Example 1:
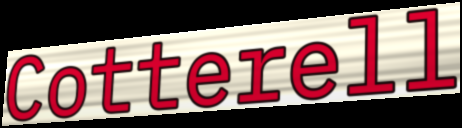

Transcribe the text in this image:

Cotterell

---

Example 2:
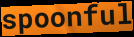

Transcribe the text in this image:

spoonful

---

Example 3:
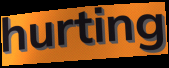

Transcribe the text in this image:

hurting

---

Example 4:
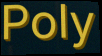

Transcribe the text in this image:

Poly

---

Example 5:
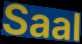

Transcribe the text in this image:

Saal